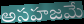
అసహజమే